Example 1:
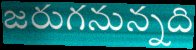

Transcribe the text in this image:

జరుగనున్నది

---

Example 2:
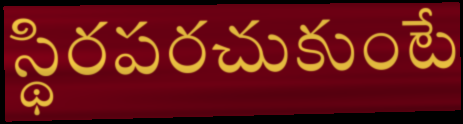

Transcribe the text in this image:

స్థిరపరచుకుంటే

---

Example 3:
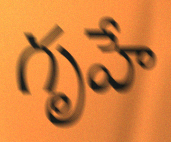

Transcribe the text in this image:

గృహే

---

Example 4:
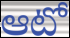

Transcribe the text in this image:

ఆటో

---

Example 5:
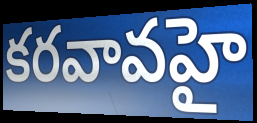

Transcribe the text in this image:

కరవావహై